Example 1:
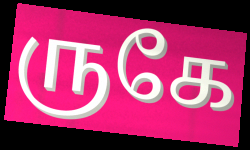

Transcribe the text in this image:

ருகே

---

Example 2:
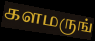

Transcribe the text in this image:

களமருங்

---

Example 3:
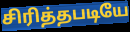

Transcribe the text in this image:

சிரித்தபடியே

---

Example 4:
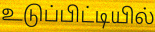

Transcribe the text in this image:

உடுப்பிட்டியில்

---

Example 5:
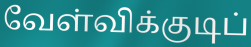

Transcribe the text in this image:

வேள்விக்குடிப்